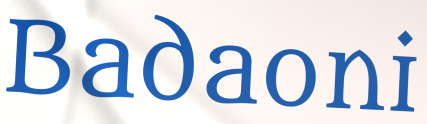
Badaoni